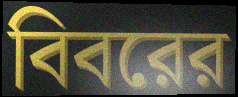
বিবরের